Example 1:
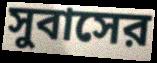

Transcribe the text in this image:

সুবাসের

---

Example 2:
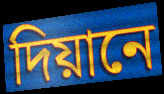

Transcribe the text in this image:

দিয়ানে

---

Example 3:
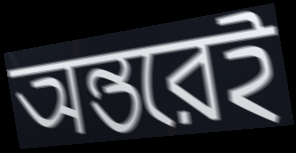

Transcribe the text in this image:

অন্তরেই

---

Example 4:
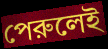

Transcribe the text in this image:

পেরুলেই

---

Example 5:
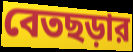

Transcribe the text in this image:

বেতছড়ার